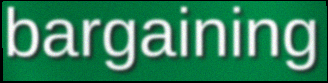
bargaining